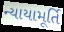
ન્યાયામૂર્તિ